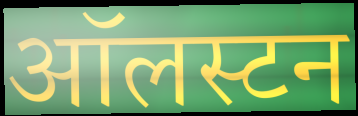
ऑलस्टन